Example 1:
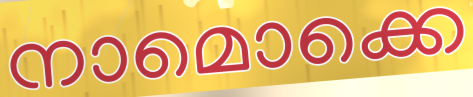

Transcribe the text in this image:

നാമൊക്കെ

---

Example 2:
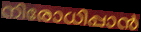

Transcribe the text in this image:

നിരോധിപ്പാൻ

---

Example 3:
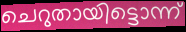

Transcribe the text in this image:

ചെറുതായിട്ടൊന്ന്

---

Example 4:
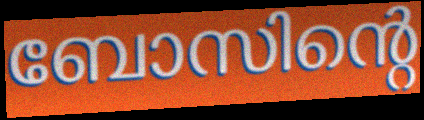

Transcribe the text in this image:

ബോസിന്റെ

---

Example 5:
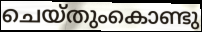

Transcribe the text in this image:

ചെയ്തുംകൊണ്ടു